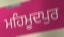
ਮਹਿਮੂਦਪੁਰ